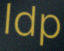
ldp